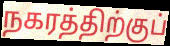
நகரத்திற்குப்